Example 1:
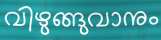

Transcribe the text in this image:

വിഴുങ്ങുവാനും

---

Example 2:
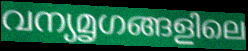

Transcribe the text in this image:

വന്യമൃഗങ്ങളിലെ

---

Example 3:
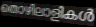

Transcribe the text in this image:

തൊഴിലാളികൾ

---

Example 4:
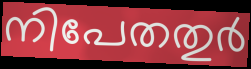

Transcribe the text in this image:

നിപേതതുർ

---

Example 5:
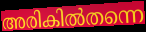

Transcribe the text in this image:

അരികിൽതന്നെ